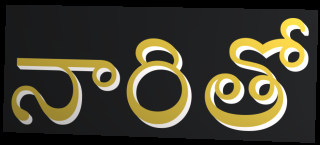
నారితో